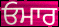
ਓਮਾਰ